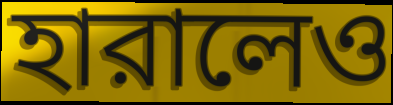
হারালেও